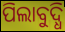
ପିଲାବୁଦ୍ଧି